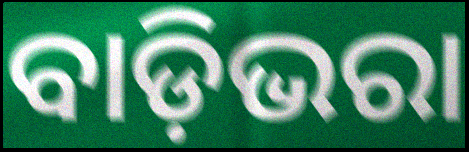
ବାଡ଼ିଭରା